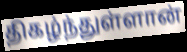
திகழ்ந்துள்ளான்